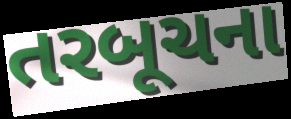
તરબૂચના